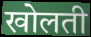
खोलती